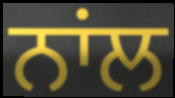
ਨਾਂਲ